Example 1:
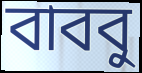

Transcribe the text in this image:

বাববু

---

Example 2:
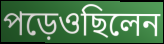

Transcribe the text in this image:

পড়েওছিলেন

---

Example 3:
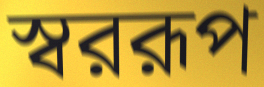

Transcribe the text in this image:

স্বররূপ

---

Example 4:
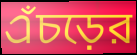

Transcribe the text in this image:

এঁচড়ের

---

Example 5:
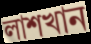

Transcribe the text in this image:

লাশখান